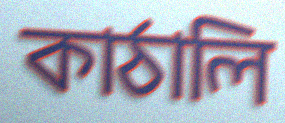
কাঠালি